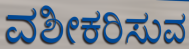
ವಶೀಕರಿಸುವ